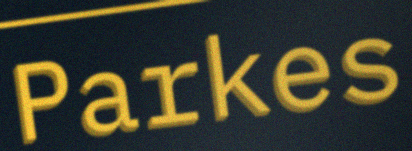
Parkes